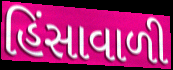
હિંસાવાળી